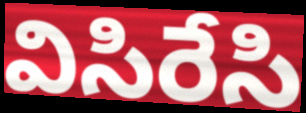
విసిరేసి